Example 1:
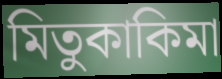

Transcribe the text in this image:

মিতুকাকিমা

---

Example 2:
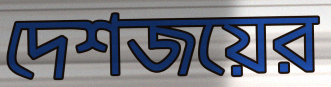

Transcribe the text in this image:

দেশজয়ের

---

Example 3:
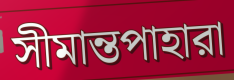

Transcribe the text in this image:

সীমান্তপাহারা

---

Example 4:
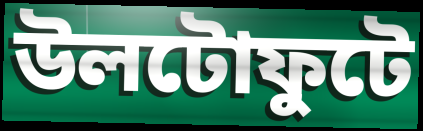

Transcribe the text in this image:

উলটোফুটে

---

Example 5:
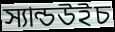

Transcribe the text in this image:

স্যান্ডউইচ